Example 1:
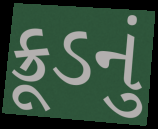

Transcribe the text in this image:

ક્રૂડનું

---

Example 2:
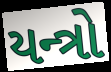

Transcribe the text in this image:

યન્ત્રો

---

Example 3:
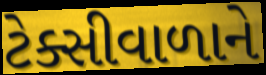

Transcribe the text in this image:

ટેક્સીવાળાને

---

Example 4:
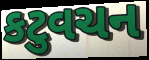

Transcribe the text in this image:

કટુવચન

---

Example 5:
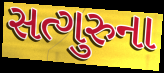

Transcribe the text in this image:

સત્ગુરુના